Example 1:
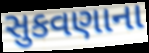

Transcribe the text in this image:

સુકવણાના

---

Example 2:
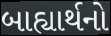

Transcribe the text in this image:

બાહ્યાર્થનો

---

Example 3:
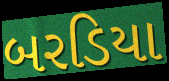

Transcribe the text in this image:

બરડિયા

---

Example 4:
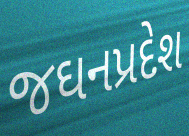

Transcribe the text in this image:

જઘનપ્રદેશ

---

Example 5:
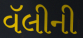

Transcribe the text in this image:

વૅલીની